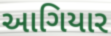
આગિયાર